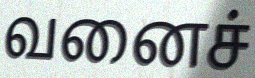
வனைச்